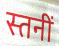
स्तनीं